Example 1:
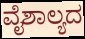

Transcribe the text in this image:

ವೈಶಾಲ್ಯದ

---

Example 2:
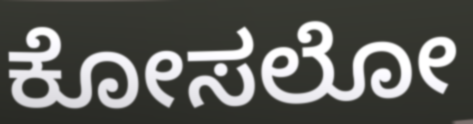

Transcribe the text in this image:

ಕೋಸಲೋ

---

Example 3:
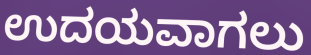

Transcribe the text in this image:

ಉದಯವಾಗಲು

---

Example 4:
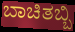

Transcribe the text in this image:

ಬಾಚಿತಬ್ಬಿ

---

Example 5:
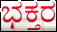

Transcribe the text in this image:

ಭಕ್ತರ